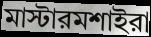
মাস্টারমশাইরা